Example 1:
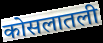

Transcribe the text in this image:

कोसलातली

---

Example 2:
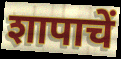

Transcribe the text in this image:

शापाचें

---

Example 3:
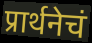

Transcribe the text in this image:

प्रार्थनेचं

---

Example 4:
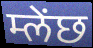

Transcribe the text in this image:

म्लेंछ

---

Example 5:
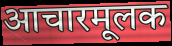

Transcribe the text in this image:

आचारमूलक